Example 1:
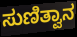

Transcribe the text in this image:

ಸುಣಿತ್ವಾನ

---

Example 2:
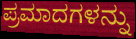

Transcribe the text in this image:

ಪ್ರಮಾದಗಳನ್ನು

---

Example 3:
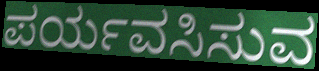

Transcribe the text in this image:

ಪರ್ಯವಸಿಸುವ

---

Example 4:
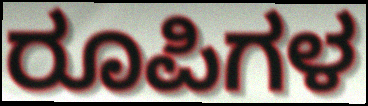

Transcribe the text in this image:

ರೂಪಿಗಳ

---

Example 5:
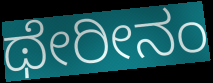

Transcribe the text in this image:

ಥೇರೀನಂ